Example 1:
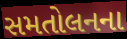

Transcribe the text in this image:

સમતોલનના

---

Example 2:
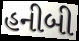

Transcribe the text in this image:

હનીબી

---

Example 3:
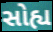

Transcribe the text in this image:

સોહ્ય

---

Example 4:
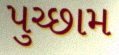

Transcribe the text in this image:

પુચ્છામ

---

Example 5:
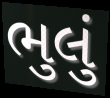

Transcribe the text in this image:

ભુલું